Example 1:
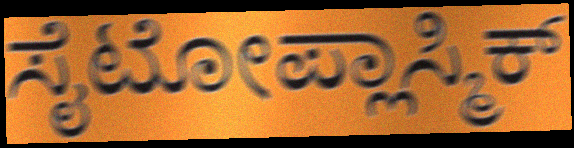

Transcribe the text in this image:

ಸೈಟೋಪ್ಲಾಸ್ಮಿಕ್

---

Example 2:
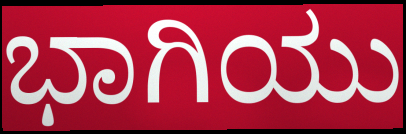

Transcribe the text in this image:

ಭಾಗಿಯು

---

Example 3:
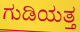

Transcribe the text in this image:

ಗುಡಿಯತ್ತ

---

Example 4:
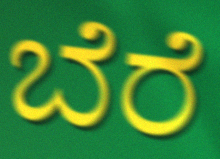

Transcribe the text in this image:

ಬೆರೆ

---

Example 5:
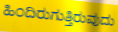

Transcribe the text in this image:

ಹಿಂದಿರುಗುತ್ತಿರುವುದು